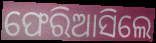
ଫେରିଆସିଲେ